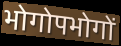
भोगोपभोगों